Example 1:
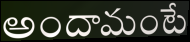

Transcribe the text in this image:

అందామంటే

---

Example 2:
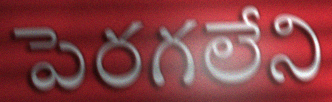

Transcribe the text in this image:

పెరగలేని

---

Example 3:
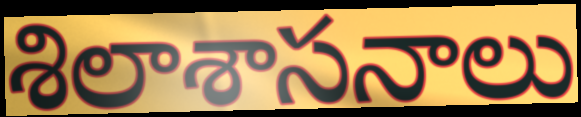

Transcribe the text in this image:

శిలాశాసనాలు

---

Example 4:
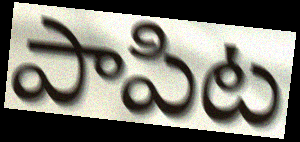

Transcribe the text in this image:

పాపిట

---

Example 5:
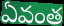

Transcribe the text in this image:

ఏవంత